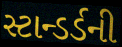
સ્ટાન્ડર્ડની